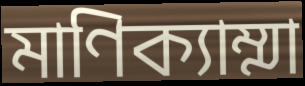
মাণিক্যাম্মা